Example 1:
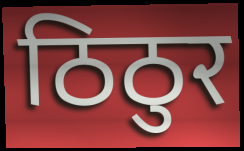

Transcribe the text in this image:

ठिठुर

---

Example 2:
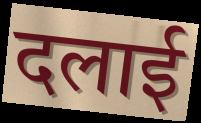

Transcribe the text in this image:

दलाई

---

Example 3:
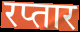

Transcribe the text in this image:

रप्तार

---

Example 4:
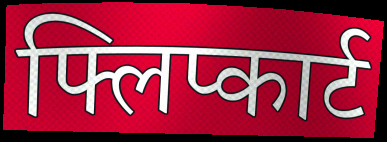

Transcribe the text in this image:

फ्लिप्कार्ट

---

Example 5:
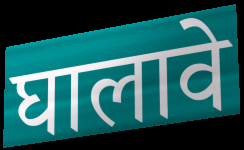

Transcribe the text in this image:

घालावे